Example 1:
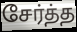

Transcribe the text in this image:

சேர்த்த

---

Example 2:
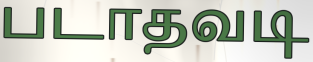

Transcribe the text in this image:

படாதவடி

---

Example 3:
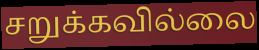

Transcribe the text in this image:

சறுக்கவில்லை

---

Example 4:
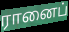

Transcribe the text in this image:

ரானைப்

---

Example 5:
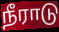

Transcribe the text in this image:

நீராடு